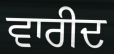
ਵਾਰੀਦ